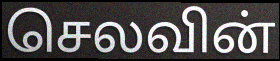
செலவின்